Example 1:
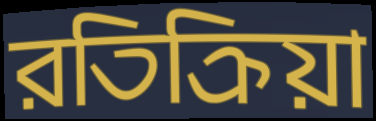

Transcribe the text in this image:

রতিক্রিয়া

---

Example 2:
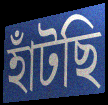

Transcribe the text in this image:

হাঁটছি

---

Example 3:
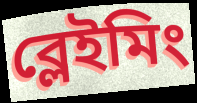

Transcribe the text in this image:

ব্লেইমিং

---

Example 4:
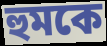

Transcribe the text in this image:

হুমকে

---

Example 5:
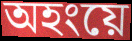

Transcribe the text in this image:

অহংয়ে